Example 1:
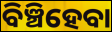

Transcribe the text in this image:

ବିଞ୍ଚିହେବା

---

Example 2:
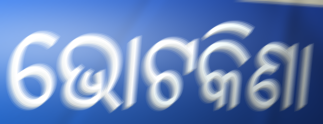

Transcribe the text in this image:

ଭୋଟକିଣା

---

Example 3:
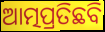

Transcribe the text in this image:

ଆତ୍ମପ୍ରତିଛବି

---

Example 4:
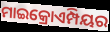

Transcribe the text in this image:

ମାଇକ୍ରୋଏମ୍ପିୟର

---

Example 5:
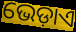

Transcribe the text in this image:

ଭେଡ଼ାଏ